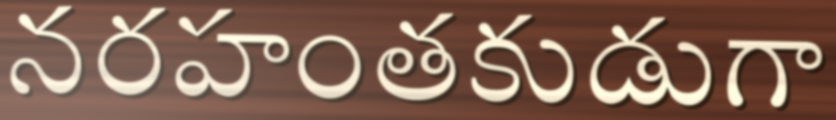
నరహంతకుడుగా